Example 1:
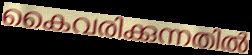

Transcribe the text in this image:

കൈവരിക്കുന്നതിൽ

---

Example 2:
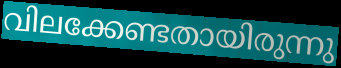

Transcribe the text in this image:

വിലക്കേണ്ടതായിരുന്നു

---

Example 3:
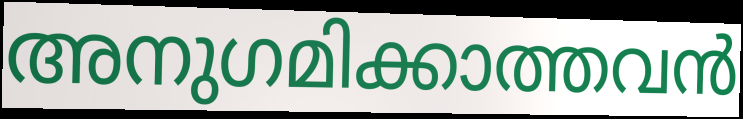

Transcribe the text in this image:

അനുഗമിക്കാത്തവൻ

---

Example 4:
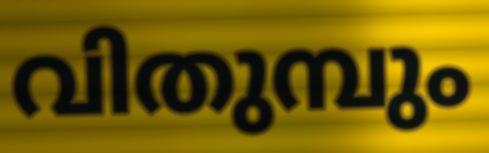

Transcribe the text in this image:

വിതുമ്പും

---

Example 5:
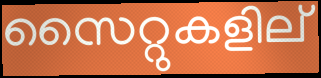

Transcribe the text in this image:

സൈറ്റുകളില്